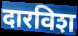
दारविश